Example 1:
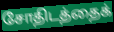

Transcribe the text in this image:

சோதிடத்தைக்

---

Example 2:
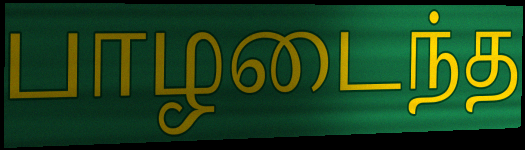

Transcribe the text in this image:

பாழடைந்த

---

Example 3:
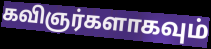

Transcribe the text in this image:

கவிஞர்களாகவும்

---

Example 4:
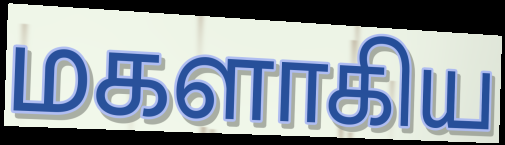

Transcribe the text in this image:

மகளாகிய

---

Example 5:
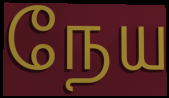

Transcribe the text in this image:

நேய